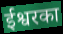
ईश्वरका